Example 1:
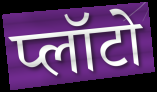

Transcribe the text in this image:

प्लॉटो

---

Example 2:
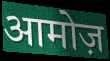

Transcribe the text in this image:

आमोज़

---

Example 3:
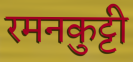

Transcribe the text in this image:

रमनकुट्टी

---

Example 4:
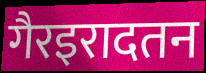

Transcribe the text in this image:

गैरइरादतन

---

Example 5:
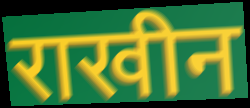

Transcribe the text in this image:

राखीन